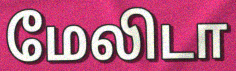
மேலிடா